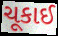
ચૂકાઈ